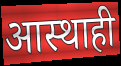
आस्थाही